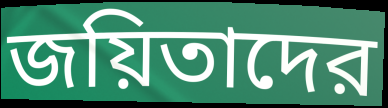
জয়িতাদের